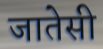
जातेसी